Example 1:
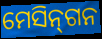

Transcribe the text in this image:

ମେସିନ୍‌ଗନ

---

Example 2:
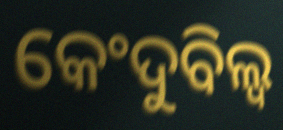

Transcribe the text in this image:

କେଂଦୁବିଲ୍ୱ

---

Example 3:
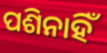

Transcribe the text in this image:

ପଶିନାହିଁ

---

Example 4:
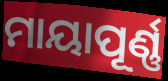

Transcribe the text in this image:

ମାୟାପୂର୍ଣ୍ଣ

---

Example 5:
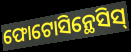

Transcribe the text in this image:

ଫୋଟୋସିନ୍ଥେସିସ୍